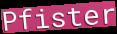
Pfister